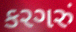
કરગરું